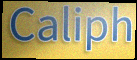
Caliph